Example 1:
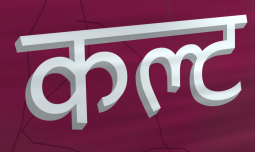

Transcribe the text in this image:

कल्ट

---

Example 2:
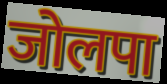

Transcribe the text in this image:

जोलपा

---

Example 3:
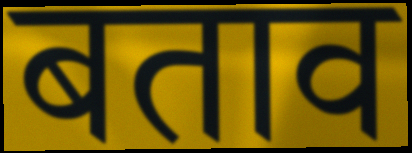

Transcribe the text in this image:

बताव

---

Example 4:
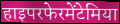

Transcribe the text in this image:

हाइपरफेरमेंटेमिया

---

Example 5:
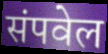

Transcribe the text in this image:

संपवेल